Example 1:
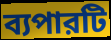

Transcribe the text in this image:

ব্যপারটি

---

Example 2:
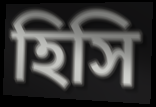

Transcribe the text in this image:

হিসি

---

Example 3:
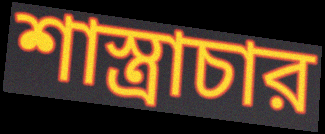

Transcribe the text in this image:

শাস্ত্রাচার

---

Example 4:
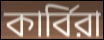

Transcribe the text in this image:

কার্বিরা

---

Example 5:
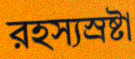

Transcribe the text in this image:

রহস্যস্রষ্টা